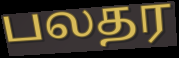
பலதர